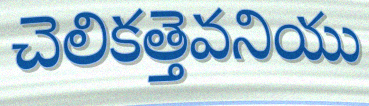
చెలికత్తెవనియు